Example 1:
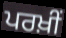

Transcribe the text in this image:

ਪਰਖ਼ੀਂ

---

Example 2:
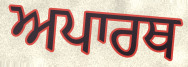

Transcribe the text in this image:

ਅਪਾਰਥ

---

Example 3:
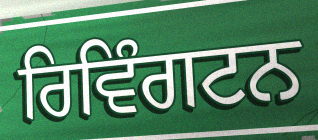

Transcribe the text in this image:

ਰਿਵਿੰਗਟਨ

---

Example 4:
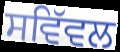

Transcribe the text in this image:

ਸਵਿੱਵਲ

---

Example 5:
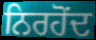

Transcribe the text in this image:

ਨਿਰਹੋਂਦ